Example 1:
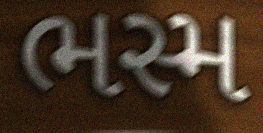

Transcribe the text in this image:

ભસ્મ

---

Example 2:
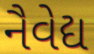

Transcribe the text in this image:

નૈવેદ્ય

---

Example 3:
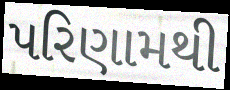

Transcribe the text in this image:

પરિણામથી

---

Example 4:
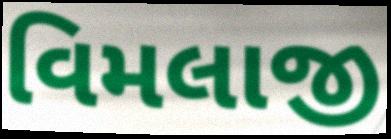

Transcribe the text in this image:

વિમલાજી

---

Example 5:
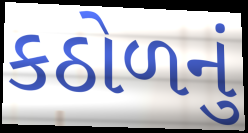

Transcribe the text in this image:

કઠોળનું